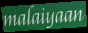
malaiyaan